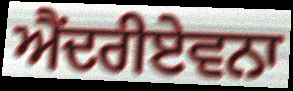
ਐਂਦਰੀਏਵਨਾ